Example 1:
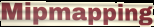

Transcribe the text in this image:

Mipmapping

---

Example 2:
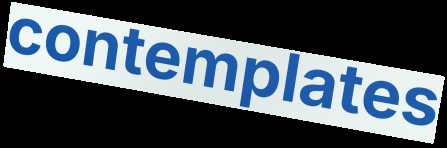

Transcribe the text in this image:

contemplates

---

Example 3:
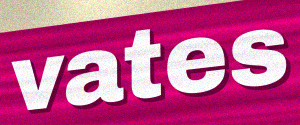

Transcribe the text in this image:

vates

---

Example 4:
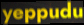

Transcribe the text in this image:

yeppudu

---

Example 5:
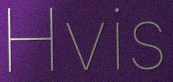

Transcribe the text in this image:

Hvis